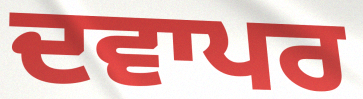
ਦਵਾਪਰ